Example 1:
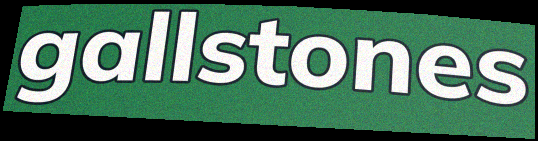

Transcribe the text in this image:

gallstones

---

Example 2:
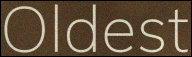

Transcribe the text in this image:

Oldest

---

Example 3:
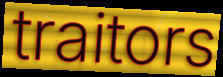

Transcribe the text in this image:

traitors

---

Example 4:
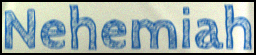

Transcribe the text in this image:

Nehemiah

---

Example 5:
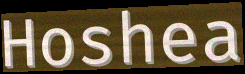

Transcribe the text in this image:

Hoshea